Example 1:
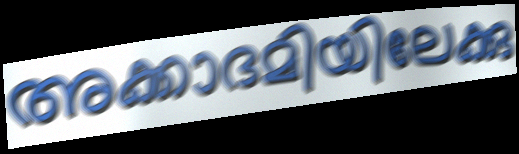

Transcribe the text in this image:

അക്കാദമിയിലേക്കു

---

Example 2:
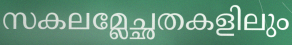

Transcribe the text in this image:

സകലമ്ലേച്ഛതകളിലും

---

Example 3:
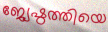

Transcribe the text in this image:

ജ്യേഷ്ഠത്തിയെ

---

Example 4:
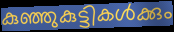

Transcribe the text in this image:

കുഞ്ഞുകുട്ടികൾക്കും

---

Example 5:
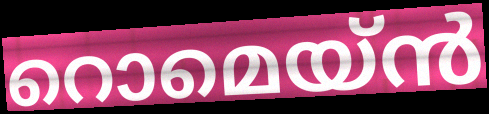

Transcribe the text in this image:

റൊമെയ്ൻ